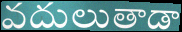
వదులుతాడా